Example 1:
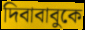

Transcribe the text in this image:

দিবাবাবুকে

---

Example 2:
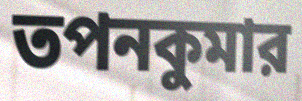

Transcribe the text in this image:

তপনকুমার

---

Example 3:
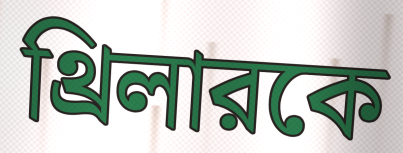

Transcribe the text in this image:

থ্রিলারকে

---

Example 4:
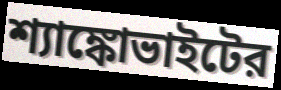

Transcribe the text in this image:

শ্যাঙ্কোভাইটের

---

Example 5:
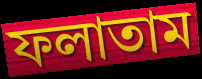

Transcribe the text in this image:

ফলাতাম